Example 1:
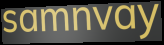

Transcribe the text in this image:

samnvay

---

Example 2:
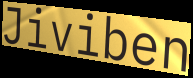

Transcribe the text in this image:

Jiviben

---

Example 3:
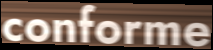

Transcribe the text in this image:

conforme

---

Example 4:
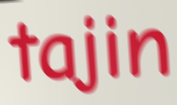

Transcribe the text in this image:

tajin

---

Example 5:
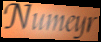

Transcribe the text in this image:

Numeyr